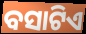
ବସାଟିଏ